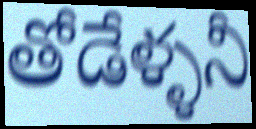
తోడేళ్ళనీ